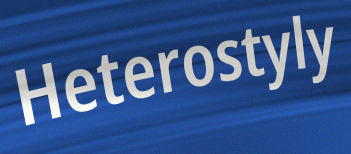
Heterostyly